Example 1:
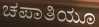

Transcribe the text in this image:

ಚಪಾತಿಯೂ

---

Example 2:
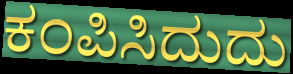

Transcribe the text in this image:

ಕಂಪಿಸಿದುದು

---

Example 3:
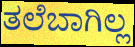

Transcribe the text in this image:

ತಲೆಬಾಗಿಲ್ಲ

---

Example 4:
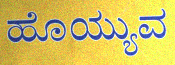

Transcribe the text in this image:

ಹೊಯ್ಯುವ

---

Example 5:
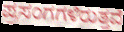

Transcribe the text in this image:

ಪ್ರಸಂಗಗಳಿರುತ್ತವೆ